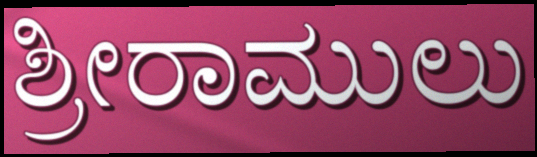
ಶ್ರೀರಾಮುಲು